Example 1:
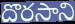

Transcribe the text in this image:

దొరసాని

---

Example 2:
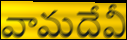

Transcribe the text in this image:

వామదేవీ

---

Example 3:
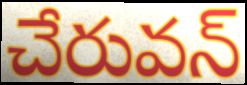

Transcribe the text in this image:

చేరువన్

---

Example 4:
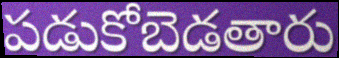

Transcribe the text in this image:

పడుకోబెడతారు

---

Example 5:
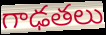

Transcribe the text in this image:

గాఢతలు